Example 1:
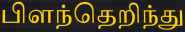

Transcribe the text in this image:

பிளந்தெறிந்து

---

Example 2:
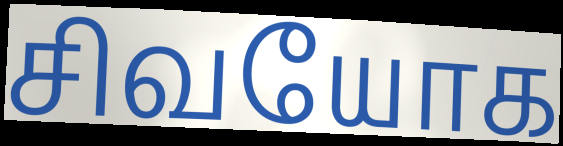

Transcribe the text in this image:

சிவயோக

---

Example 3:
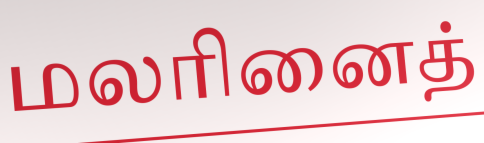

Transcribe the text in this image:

மலரினைத்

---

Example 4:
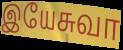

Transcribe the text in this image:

இயேசுவா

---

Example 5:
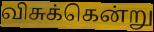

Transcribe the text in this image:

விசுக்கென்று